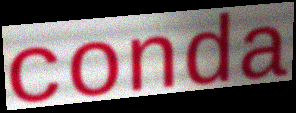
conda